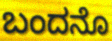
ಬಂದನೊ